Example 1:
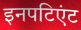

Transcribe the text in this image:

इनपटिएंट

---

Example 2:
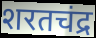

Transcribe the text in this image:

शरतचंद्र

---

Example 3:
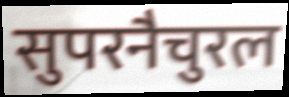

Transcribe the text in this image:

सुपरनैचुरल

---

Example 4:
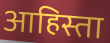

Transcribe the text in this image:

आहिस्ता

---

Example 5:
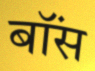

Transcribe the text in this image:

बॉंस